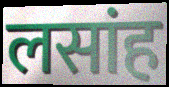
लसांह